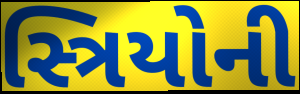
સ્ત્રિયોની